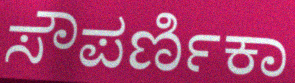
ಸೌಪರ್ಣಿಕಾ